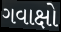
ગવાક્ષો